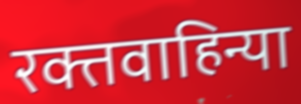
रक्तवाहिन्या